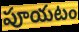
పూయటం